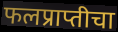
फलप्राप्तीचा